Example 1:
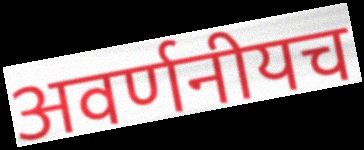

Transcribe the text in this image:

अवर्णनीयच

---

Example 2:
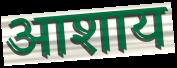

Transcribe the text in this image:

आशाय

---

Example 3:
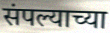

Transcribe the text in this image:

संपल्याच्या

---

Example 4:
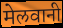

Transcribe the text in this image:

मेलवानी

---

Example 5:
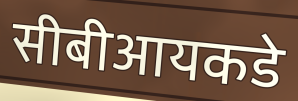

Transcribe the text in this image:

सीबीआयकडे